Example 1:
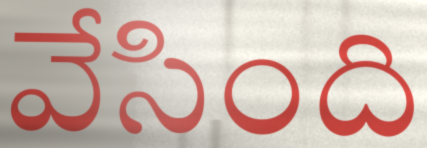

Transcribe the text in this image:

వేసింది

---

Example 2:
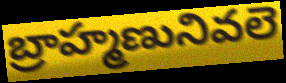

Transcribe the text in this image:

బ్రాహ్మణునివలె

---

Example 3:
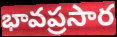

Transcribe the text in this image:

భావప్రసార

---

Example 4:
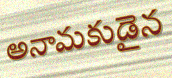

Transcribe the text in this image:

అనామకుడైన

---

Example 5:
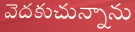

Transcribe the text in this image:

వెదకుచున్నాను